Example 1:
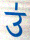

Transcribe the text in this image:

उ॑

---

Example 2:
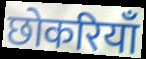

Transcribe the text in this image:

छोकरियाँ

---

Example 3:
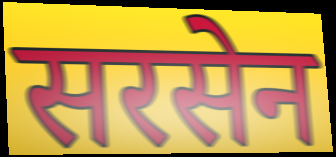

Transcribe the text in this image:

सरसेन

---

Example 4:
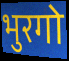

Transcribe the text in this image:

भुरगो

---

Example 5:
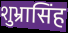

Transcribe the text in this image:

शुभ्रासिंह